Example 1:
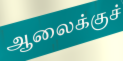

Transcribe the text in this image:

ஆலைக்குச்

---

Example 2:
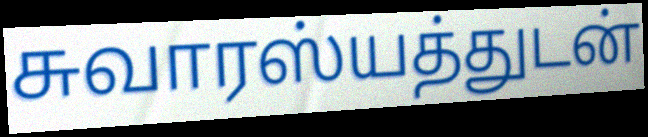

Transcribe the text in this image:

சுவாரஸ்யத்துடன்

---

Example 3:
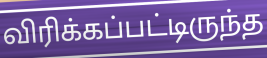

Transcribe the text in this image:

விரிக்கப்பட்டிருந்த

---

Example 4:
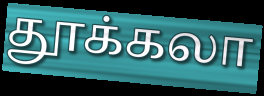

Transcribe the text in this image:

தூக்கலா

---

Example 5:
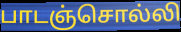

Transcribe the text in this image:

பாடஞ்சொல்லி